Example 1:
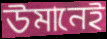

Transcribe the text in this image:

উমানেই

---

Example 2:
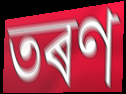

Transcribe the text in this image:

তৰণ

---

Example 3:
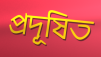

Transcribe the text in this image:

প্ৰদূষিত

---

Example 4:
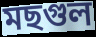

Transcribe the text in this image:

মছগুল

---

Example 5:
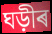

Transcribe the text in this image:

ঘড়ীৰ